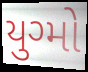
યુગ્મો